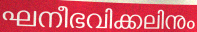
ഘനീഭവിക്കലിനും